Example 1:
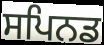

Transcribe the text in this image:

ਸਪਿਨਡ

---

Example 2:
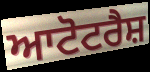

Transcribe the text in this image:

ਆਟੋਟਰੈਸ਼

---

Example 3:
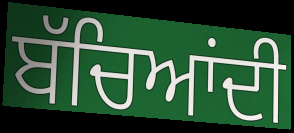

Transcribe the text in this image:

ਬੱਚਿਆਂਦੀ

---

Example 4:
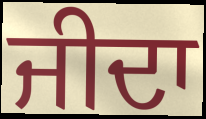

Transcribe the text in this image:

ਜੀਦਾ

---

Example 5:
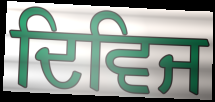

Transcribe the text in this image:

ਦਿਵਿਜ